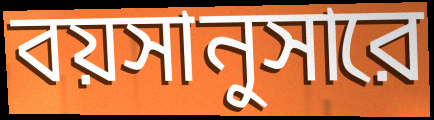
বয়সানুসারে